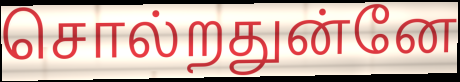
சொல்றதுன்னே